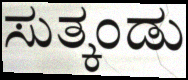
ಸುತ್ಕಂಡು